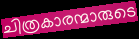
ചിത്രകാരന്മാരുടെ